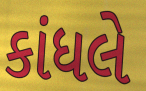
કાંધલે